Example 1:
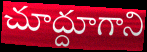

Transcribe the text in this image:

చూద్దూగాని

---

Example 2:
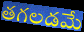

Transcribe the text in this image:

తగలడమే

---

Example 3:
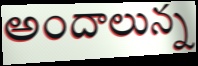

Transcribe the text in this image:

అందాలున్న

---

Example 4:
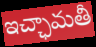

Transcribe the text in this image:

ఇచ్ఛామతీ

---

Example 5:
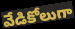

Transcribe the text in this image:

వేడికోలుగా